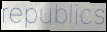
republics